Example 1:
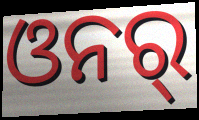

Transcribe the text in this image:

ଓନର୍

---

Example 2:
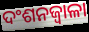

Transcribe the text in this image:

ଦଂଶନଜ୍ୱାଳା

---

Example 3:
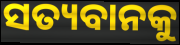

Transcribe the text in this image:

ସତ୍ୟବାନକୁ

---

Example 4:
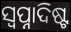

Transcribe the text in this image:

ସ୍ୱପ୍ନାଦିଷ୍ଟ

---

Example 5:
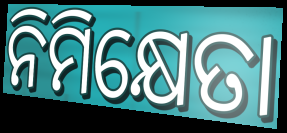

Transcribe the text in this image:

ନିମିକ୍ଷେତା